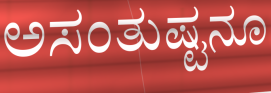
ಅಸಂತುಷ್ಟನೂ